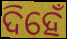
ଦିହେଁ